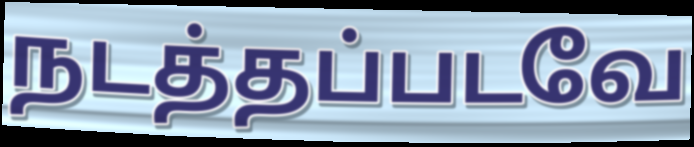
நடத்தப்படவே